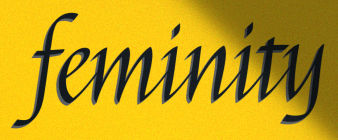
feminity